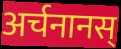
अर्चनानस्